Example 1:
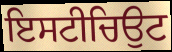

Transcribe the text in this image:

ਇਸਟੀਚਿਉਟ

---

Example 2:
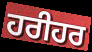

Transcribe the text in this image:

ਹਰੀਹਰ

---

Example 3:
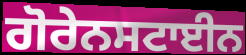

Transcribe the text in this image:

ਗੋਰੇਨਸਟਾਈਨ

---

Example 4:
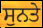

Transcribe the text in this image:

ਸੁਨਤੇ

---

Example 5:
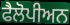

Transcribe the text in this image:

ਫੈਲੋਪੀਅਨ